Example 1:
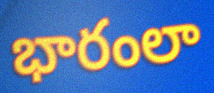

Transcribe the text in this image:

భారంలా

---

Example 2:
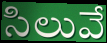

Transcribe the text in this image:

సిలువే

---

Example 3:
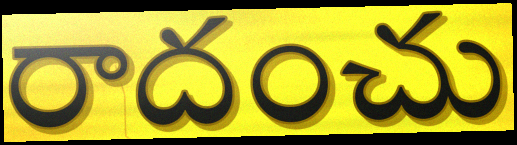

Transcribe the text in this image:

రాదంచు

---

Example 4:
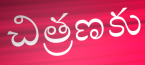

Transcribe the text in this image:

చిత్రణకు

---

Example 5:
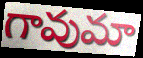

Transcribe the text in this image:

గావుమా